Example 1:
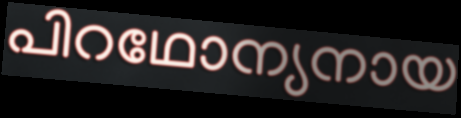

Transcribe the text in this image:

പിറഥോന്യനായ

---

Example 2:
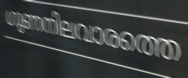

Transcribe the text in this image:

ഗുണനിലവാരത്തെ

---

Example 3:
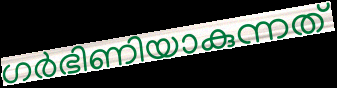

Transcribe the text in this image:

ഗർഭിണിയാകുന്നത്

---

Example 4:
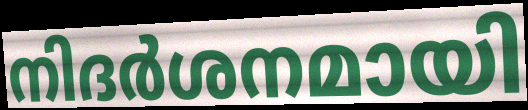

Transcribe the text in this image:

നിദർശനമായി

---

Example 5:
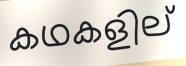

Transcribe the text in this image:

കഥകളില്